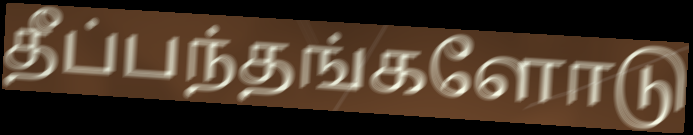
தீப்பந்தங்களோடு